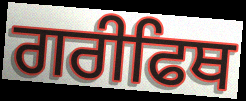
ਗਰੀਫਿਥ